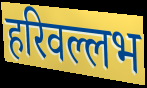
हरिवल्लभ